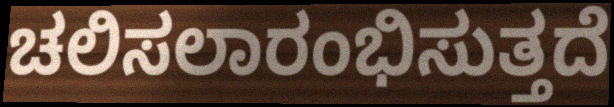
ಚಲಿಸಲಾರಂಭಿಸುತ್ತದೆ